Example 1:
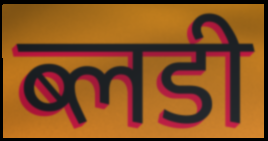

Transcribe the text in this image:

ब्लडी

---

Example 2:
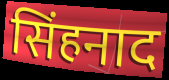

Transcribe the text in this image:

सिंहनाद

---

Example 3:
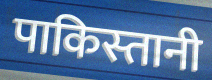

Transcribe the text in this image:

पाकिस्‍तानी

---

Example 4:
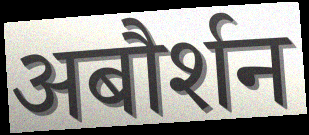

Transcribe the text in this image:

अबौर्शन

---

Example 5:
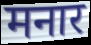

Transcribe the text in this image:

मनार